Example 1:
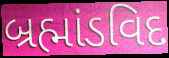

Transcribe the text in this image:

બ્રહ્માંડવિદ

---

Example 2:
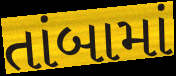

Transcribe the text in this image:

તાંબામાં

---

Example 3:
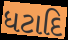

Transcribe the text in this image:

ધટાદિ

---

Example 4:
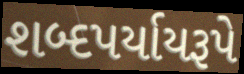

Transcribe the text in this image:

શબ્દપર્યાયરૂપે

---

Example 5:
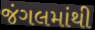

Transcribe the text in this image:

જંગલમાંથી